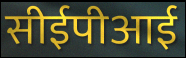
सीईपीआई